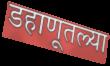
डहाणूतल्या